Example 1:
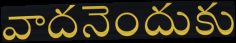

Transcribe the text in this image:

వాదనెందుకు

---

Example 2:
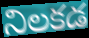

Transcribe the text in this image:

నిలకడ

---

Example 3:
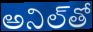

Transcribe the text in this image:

అనిల్‌తో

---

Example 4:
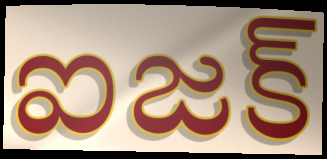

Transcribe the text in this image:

ఐజక్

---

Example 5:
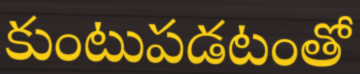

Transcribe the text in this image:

కుంటుపడటంతో